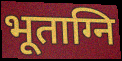
भूताग्नि